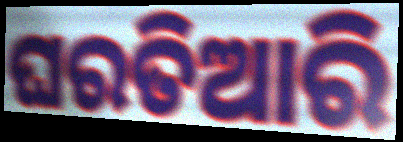
ଘରତିଆରି